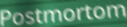
Postmortom